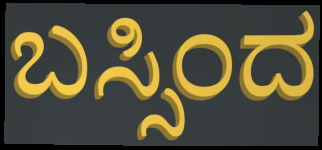
ಬಸ್ಸಿಂದ